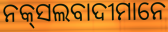
ନକ୍‌ସଲବାଦୀମାନେ